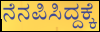
ನೆನಪಿಸಿದ್ದಕ್ಕೆ